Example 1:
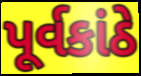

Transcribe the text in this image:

પૂર્વકાંઠે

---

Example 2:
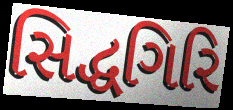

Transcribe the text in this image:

સિદ્ધગિરિ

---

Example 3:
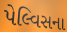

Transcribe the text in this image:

પેલ્વિસના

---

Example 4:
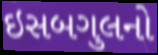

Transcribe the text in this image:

ઇસબગુલનો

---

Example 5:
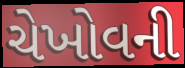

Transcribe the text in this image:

ચેખોવની